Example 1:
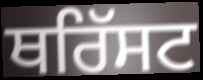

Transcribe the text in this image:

ਥਰਿੱਸਟ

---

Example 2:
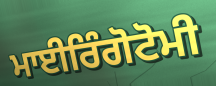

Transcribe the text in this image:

ਮਾਈਰਿੰਗੋਟੋਮੀ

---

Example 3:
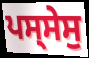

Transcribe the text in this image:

ਪਸ੍ਸੇਸੁ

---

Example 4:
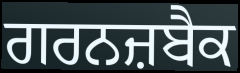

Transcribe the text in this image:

ਗਰਨਜ਼ਬੈਕ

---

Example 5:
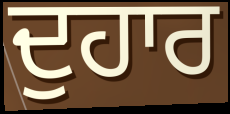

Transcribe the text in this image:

ਦੁਹਾਰ